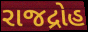
રાજદ્રોહ